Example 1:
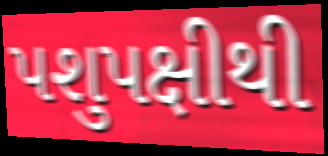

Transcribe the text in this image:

પશુપક્ષીથી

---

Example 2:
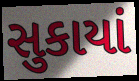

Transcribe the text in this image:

સુકાયાં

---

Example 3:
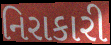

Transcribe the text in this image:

નિરાકારી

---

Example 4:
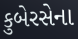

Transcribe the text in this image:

કુબેરસેના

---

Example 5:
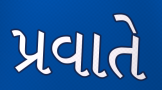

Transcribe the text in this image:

પ્રવાતે